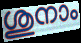
ശുനാം